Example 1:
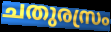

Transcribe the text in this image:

ചതുരസ്രം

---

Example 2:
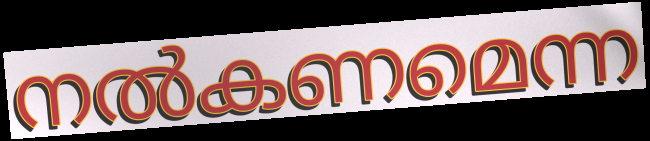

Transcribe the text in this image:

നൽകണമെന്ന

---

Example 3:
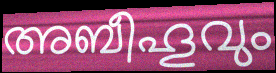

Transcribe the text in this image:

അബീഹൂവും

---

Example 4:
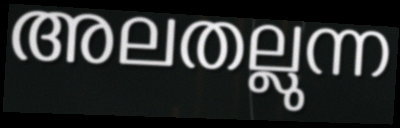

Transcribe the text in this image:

അലതല്ലുന്ന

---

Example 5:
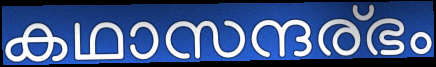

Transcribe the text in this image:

കഥാസന്ദര്ഭം